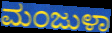
ಮಂಜುಳಾ